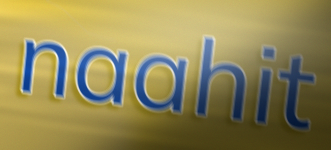
naahit